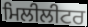
ਮਿਲੀਲੀਟਰ